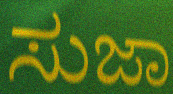
ಸುಜಾ